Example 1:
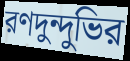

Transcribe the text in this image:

রণদুন্দুভির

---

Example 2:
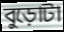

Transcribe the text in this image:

বুড়োটা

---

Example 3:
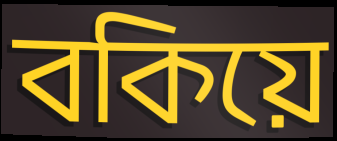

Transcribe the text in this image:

বকিয়ে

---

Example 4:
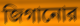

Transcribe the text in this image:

জিগানোর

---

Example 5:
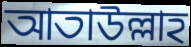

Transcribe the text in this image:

আতাউল্লাহ